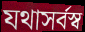
যথাসর্বস্ব